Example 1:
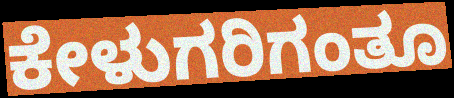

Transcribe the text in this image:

ಕೇಳುಗರಿಗಂತೂ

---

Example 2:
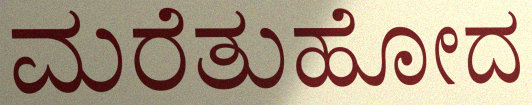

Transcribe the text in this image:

ಮರೆತುಹೋದ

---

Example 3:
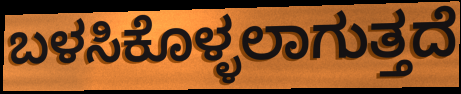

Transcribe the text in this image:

ಬಳಸಿಕೊಳ್ಳಲಾಗುತ್ತದೆ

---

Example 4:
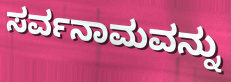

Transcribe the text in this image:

ಸರ್ವನಾಮವನ್ನು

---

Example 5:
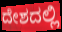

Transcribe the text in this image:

ದೇಶದಲ್ಲಿ